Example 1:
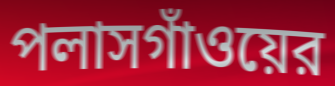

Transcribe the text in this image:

পলাসগাঁওয়ের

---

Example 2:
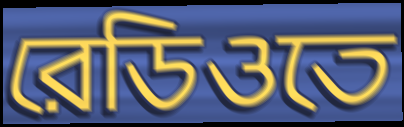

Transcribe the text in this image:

রেডিওতে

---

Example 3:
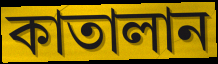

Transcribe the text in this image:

কাতালান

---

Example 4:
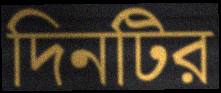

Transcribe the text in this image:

দিনটির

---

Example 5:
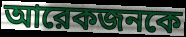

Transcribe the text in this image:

আরেকজনকে